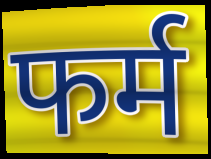
फर्म